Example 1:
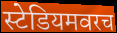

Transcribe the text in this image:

स्टेडियमवरच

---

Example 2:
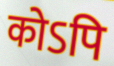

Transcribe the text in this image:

कोऽपि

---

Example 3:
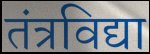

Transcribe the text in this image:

तंत्रविद्या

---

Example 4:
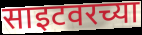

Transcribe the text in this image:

साइटवरच्या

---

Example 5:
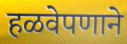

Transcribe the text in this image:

हळवेपणाने